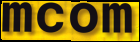
mcom